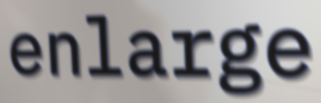
enlarge